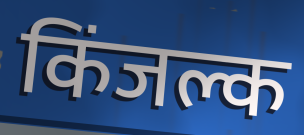
किंजल्क